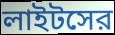
লাইটসের